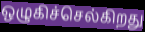
ஒழுகிச்செல்கிறது